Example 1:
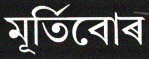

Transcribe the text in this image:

মূৰ্তিবোৰ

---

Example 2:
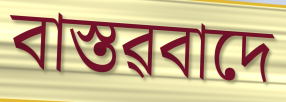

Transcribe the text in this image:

বাস্তৱবাদে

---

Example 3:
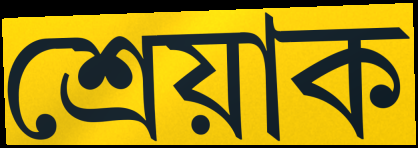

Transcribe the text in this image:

শ্ৰেয়াক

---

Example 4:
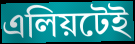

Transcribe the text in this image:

এলিয়টেই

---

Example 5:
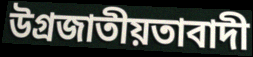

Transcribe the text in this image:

উগ্ৰজাতীয়তাবাদী